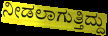
ನೀಡಲಾಗುತ್ತಿದ್ದು